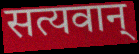
सत्यवान्